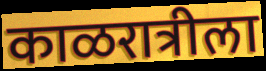
काळरात्रीला